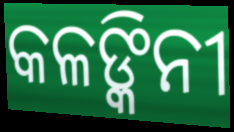
କଳଙ୍କିନୀ